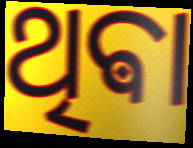
ଥିଵା